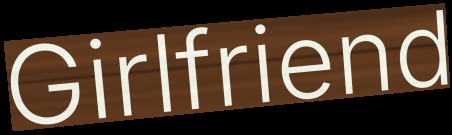
Girlfriend